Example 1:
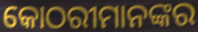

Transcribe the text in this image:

କୋଠରୀମାନଙ୍କର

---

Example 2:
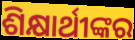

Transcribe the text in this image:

ଶିକ୍ଷାର୍ଥୀଙ୍କର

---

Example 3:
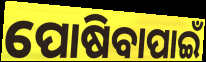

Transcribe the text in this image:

ପୋଷିବାପାଇଁ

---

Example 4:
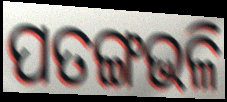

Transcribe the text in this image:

ପତଙ୍ଗଭଳି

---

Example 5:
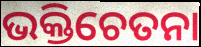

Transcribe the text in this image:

ଭକ୍ତିଚେତନା